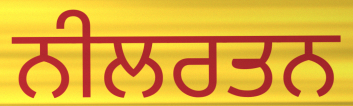
ਨੀਲਰਤਨ